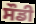
ਸੌਡੀ